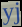
yj